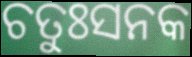
ଚତୁଃସନକ